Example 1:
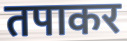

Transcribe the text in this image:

तपाकर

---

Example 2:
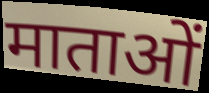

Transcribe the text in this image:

माताओं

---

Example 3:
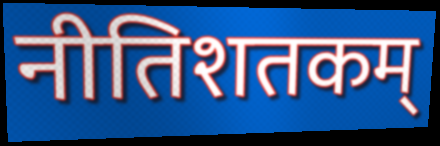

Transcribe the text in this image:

नीतिशतकम्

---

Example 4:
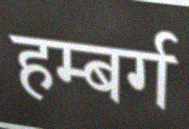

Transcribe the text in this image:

हम्बर्ग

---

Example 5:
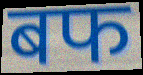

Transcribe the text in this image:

बफ